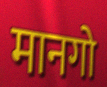
मानगो